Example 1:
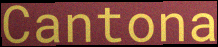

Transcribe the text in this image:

Cantona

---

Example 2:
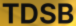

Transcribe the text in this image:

TDSB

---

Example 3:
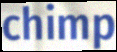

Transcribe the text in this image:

chimp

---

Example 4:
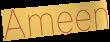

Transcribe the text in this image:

Ameen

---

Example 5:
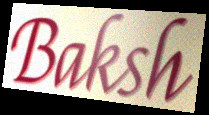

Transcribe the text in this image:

Baksh